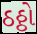
ઠઠ્ઠો